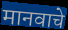
मानवाचे